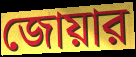
জোয়ার